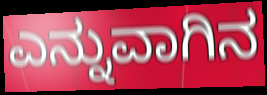
ಎನ್ನುವಾಗಿನ